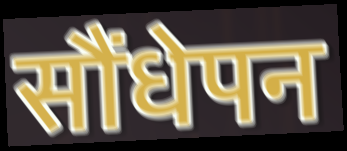
सौंधेपन